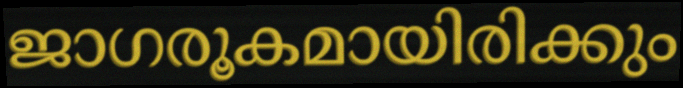
ജാഗരൂകമായിരിക്കും